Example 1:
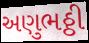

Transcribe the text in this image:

અણુભઠ્ઠી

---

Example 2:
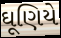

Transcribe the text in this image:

ઘૂણિયે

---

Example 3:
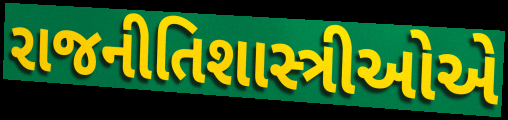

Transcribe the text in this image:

રાજનીતિશાસ્ત્રીઓએ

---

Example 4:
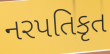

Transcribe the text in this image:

નરપતિકૃત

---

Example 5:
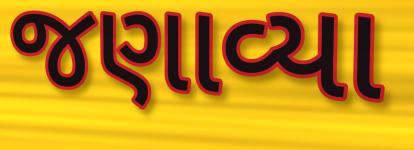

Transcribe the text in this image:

જણાવ્યા